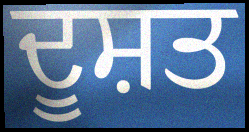
ਦੂਸ਼ਤ